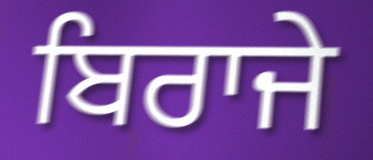
ਬਿਰਾਜੇ